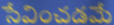
సేవించడమే